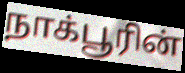
நாக்பூரின்